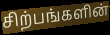
சிற்பங்களின்